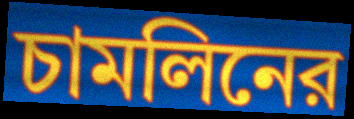
চামলিনের